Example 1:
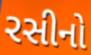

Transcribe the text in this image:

રસીનો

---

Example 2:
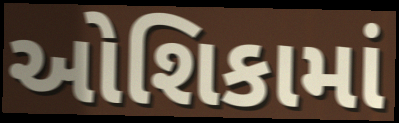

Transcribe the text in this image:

ઓશિકામાં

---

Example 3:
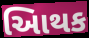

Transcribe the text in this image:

આિથક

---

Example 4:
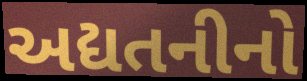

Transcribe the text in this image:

અદ્યતનીનો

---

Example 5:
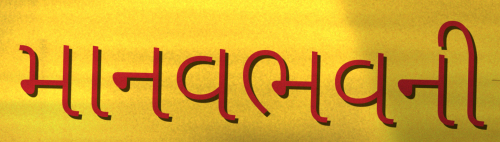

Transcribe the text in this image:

માનવભવની